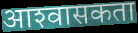
आश्वासकता